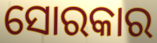
ସୋରକାର